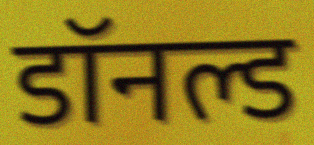
डॉनल्ड